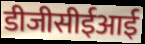
डीजीसीईआई